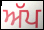
ਅੱਪ